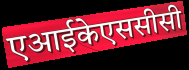
एआईकेएससीसी